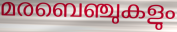
മരബെഞ്ചുകളും